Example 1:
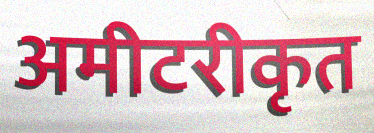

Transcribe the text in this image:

अमीटरीकृत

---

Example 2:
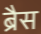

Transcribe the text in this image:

ब्रैस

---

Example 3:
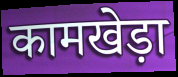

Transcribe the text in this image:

कामखेड़ा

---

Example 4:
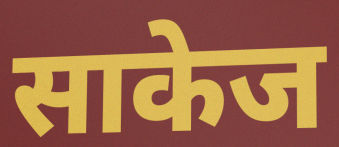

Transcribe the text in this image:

साकेज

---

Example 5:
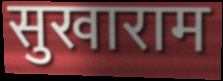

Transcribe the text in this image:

सुखाराम